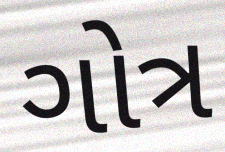
ગોત્ર